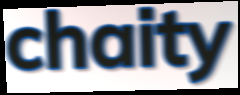
chaity